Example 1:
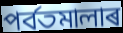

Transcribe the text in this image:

পৰ্বতমালাৰ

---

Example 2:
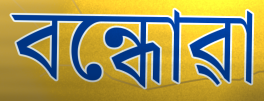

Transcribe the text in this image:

বন্ধোৱা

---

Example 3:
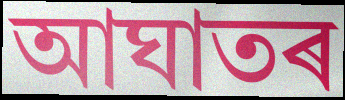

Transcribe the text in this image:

আঘাতৰ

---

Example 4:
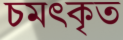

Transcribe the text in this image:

চমৎকৃত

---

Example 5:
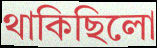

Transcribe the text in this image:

থাকিছিলো